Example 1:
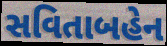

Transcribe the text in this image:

સવિતાબહેન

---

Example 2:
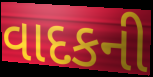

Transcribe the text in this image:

વાદકની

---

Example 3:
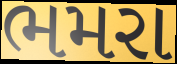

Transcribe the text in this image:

ભમરા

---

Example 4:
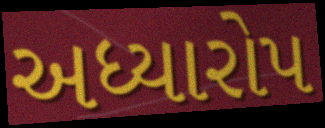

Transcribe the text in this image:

અધ્યારોપ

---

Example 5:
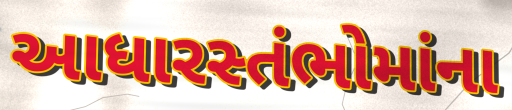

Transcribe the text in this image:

આધારસ્તંભોમાંના